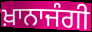
ਖ਼ਾਨਾਜੰਗੀ